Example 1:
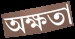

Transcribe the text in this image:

অক্ষতা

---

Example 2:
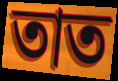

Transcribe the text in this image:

তাত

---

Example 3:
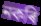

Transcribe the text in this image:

নকৰি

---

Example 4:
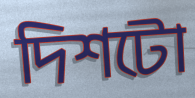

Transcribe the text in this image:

দিশটো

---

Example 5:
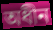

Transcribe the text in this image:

অধীন